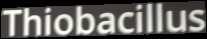
Thiobacillus